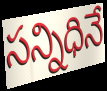
సన్నిధినే